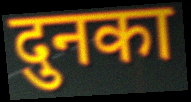
दुनका